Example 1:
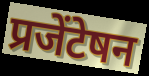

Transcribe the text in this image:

प्रजेंटेषन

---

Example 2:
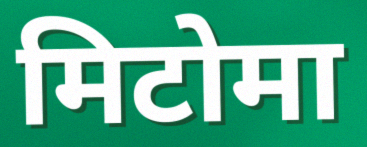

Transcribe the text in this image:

मिटोमा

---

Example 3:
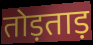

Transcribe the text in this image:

तोड़ताड़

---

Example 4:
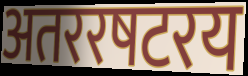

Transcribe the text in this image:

अतररषटरय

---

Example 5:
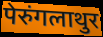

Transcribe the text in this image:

पेरुंगलाथुर